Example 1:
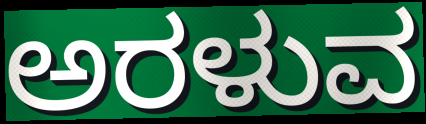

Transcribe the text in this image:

ಅರಳುವ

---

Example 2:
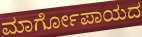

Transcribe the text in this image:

ಮಾರ್ಗೋಪಾಯದ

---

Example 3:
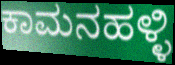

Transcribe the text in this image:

ಕಾಮನಹಳ್ಳಿ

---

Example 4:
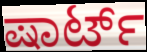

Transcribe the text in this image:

ಷಾರ್ಟ್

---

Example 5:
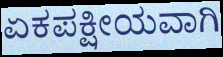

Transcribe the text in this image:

ಏಕಪಕ್ಷೀಯವಾಗಿ